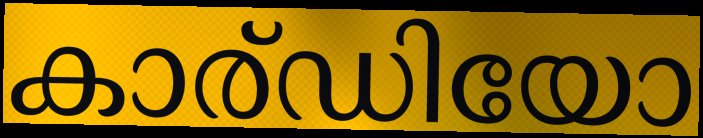
കാര്ഡിയോ